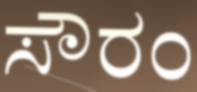
ಸೌರಂ